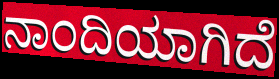
ನಾಂದಿಯಾಗಿದೆ